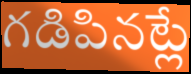
గడిపినట్లే